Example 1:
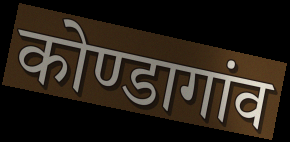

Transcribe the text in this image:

कोण्डागांव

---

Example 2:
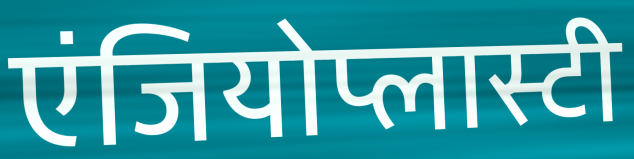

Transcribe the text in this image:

एंजियोप्लास्टी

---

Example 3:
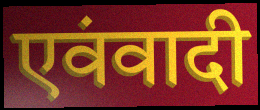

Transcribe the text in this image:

एवंवादी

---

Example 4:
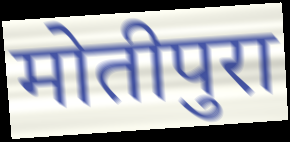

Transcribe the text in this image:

मोतीपुरा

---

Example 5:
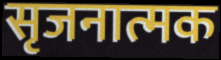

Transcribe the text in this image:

सृजनात्मक